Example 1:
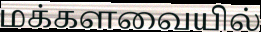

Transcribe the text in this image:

மக்களவையில்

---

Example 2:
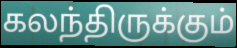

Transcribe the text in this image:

கலந்திருக்கும்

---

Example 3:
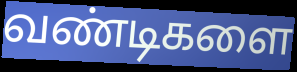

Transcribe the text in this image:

வண்டிகளை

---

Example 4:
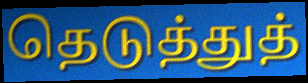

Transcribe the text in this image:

தெடுத்துத்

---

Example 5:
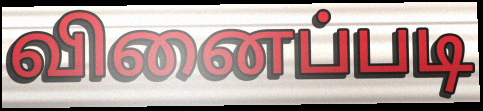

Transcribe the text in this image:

வினைப்படி